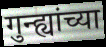
गुन्ह्यांच्या